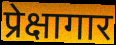
प्रेक्षागार